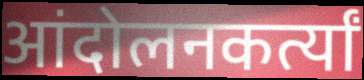
आंदोलनकर्त्यां